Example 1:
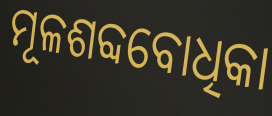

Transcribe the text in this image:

ମୂଳଶବ୍ଦବୋଧିକା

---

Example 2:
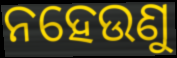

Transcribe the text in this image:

ନହେଉଣୁ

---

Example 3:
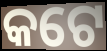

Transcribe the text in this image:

କଟେ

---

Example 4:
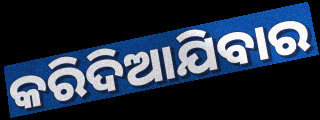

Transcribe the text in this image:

କରିଦିଆଯିବାର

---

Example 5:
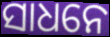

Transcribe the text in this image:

ସାଧନେ